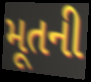
મૂતની